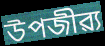
উপজীৱ্য